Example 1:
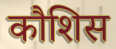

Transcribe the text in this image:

कौशिस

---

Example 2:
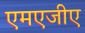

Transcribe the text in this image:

एमएजीए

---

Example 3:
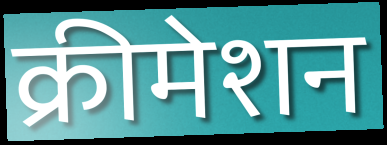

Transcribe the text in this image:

क्रीमेशन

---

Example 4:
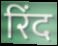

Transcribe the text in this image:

रिंद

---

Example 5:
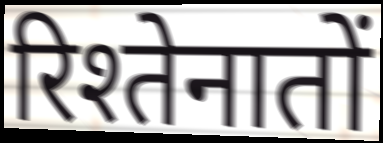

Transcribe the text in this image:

रिश्तेनातों